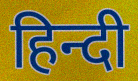
हिन्‍दी